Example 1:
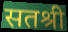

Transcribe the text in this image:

सतश्री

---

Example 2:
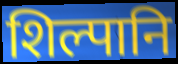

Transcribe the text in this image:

शिल्पानि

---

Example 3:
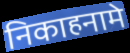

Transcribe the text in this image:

निकाहनामे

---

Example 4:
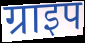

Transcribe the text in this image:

ग्राइप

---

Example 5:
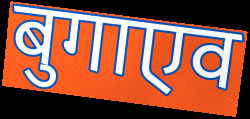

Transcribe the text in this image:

बुगाएव